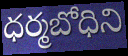
ధర్మబోధిని